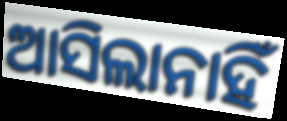
ଆସିଲାନାହିଁ